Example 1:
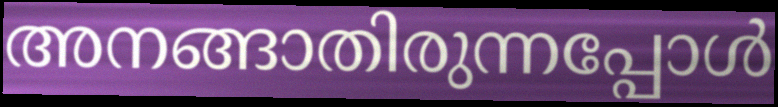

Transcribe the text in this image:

അനങ്ങാതിരുന്നപ്പോൾ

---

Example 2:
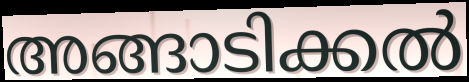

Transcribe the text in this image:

അങ്ങാടിക്കൽ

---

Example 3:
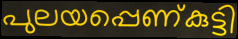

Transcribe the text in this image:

പുലയപ്പെണ്കുട്ടി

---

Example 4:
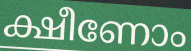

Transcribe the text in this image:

ക്ഷീണോം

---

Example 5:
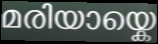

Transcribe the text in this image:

മരിയായ്കെ